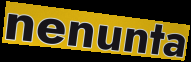
nenunta